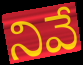
నివే